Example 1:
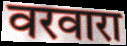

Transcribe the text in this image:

वरवारा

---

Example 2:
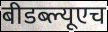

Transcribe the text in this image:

बीडब्ल्यूएच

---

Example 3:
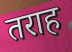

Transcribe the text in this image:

तराह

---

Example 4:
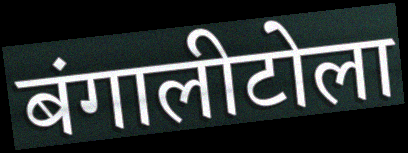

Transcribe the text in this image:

बंगालीटोला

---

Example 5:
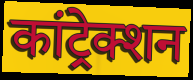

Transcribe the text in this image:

कांट्रेक्शन